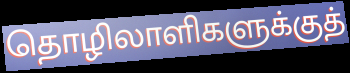
தொழிலாளிகளுக்குத்